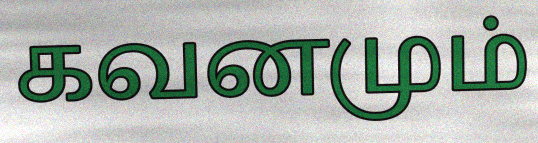
கவனமும்